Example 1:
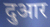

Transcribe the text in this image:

दुआर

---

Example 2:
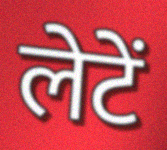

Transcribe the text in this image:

लेटें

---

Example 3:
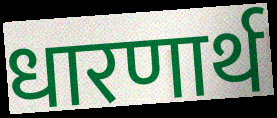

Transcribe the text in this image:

धारणार्थ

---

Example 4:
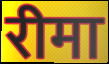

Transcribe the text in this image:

रीमा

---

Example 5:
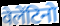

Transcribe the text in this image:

वेलेंटिनो